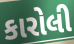
કારોલી